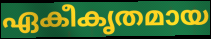
ഏകീകൃതമായ